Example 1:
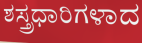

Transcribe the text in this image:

ಶಸ್ತ್ರಧಾರಿಗಳಾದ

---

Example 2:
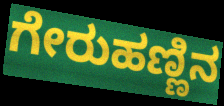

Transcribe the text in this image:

ಗೇರುಹಣ್ಣಿನ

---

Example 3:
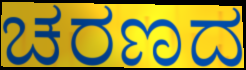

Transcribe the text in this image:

ಚರಣದ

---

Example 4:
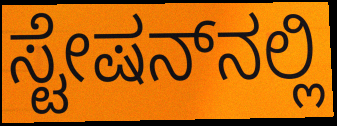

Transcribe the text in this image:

ಸ್ಟೇಷನ್‌ನಲ್ಲಿ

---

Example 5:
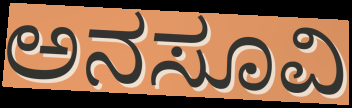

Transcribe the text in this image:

ಅನಸೂವಿ